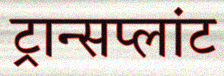
ट्रान्सप्लांट